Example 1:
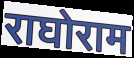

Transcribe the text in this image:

राघोराम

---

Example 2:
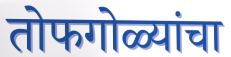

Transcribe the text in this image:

तोफगोळ्यांचा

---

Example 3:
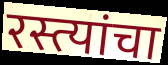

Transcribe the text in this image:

रस्त्यांचा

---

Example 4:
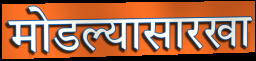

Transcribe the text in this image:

मोडल्यासारखा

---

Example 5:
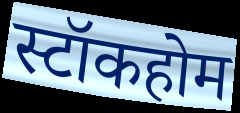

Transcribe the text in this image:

स्टॉकहोम